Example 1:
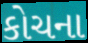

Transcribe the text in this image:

કોચના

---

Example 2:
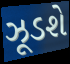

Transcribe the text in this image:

ઝૂડશે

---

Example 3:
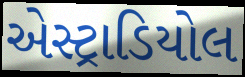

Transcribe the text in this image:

એસ્ટ્રાડિયોલ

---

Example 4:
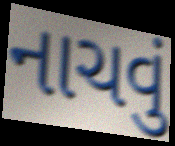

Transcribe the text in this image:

નાચવું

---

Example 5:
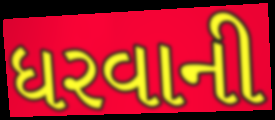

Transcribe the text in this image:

ધરવાની